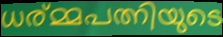
ധര്മ്മപത്നിയുടെ